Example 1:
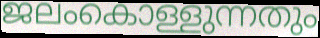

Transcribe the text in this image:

ജലംകൊള്ളുന്നതും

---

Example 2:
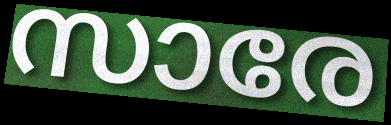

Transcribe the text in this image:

സാരേ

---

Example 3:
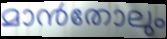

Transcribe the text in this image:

മാൻതോലും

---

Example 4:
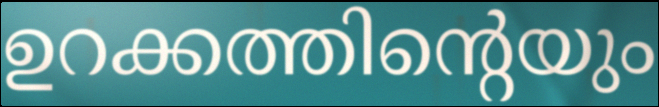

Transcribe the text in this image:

ഉറക്കത്തിന്റെയും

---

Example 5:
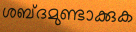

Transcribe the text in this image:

ശബ്ദമുണ്ടാക്കുക